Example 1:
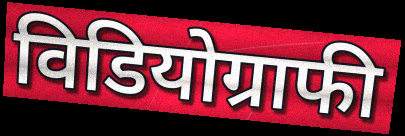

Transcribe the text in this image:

विडियोग्राफी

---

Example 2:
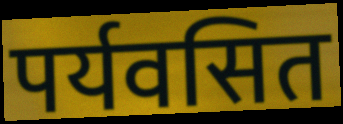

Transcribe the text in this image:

पर्यवसित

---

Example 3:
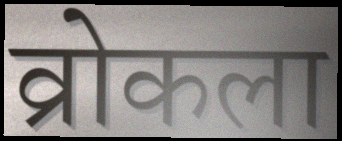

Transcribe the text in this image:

व्रोकला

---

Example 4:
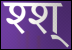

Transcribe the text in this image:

श्श्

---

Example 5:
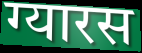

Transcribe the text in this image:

ग्यारस